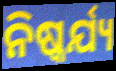
ନିଷ୍କର୍ଯ୍ୟ